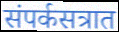
संपर्कसत्रात